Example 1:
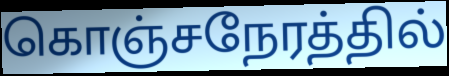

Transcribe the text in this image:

கொஞ்சநேரத்தில்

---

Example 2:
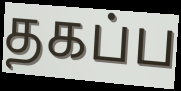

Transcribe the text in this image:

தகப்ப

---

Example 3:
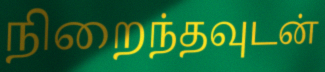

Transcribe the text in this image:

நிறைந்தவுடன்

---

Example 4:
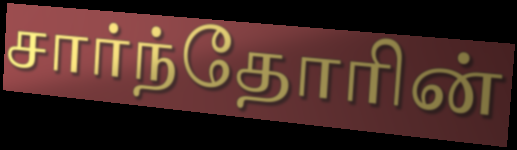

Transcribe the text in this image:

சார்ந்தோரின்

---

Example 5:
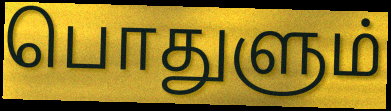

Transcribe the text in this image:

பொதுளும்